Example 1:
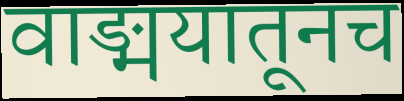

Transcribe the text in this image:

वाङ्मयातूनच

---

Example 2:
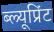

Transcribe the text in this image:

ब्ल्यूप्रिंट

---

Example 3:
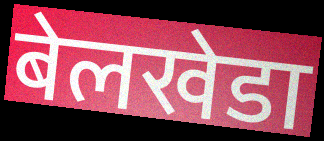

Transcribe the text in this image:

बेलखेडा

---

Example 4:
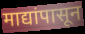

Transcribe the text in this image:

माद्यांपासून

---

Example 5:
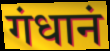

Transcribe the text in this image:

गंधानं